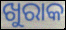
ଖୁରାକ